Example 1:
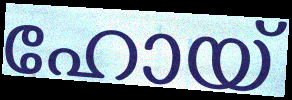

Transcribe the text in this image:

ഹോയ്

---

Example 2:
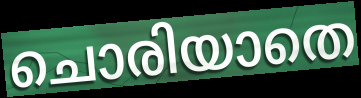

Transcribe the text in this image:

ചൊരിയാതെ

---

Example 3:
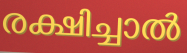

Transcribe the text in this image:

രക്ഷിച്ചാൽ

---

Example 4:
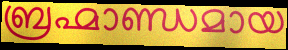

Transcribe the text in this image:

ബ്രഹ്മാണ്ഡമായ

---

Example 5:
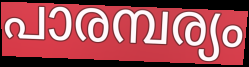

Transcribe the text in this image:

പാരമ്പര്യം